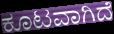
ಕೂಟವಾಗಿದೆ